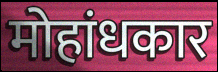
मोहांधकार